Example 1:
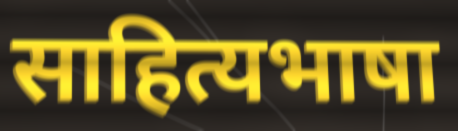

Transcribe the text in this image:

साहित्यभाषा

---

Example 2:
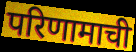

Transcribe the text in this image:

परिणामाची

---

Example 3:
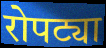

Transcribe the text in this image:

रोपट्या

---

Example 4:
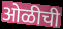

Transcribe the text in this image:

ओळीची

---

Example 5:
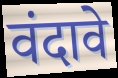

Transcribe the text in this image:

वंदावे